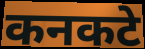
कनकटे